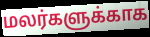
மலர்களுக்காக